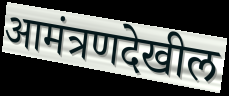
आमंत्रणदेखील